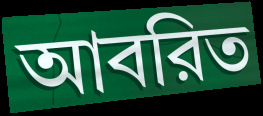
আবরিত